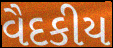
વૈદકીય